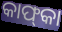
କାଫ୍‌କା